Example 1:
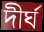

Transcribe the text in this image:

দীৰ্ঘ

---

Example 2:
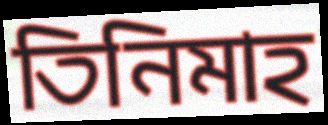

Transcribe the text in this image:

তিনিমাহ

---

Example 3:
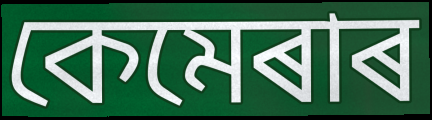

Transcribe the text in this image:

কেমেৰাৰ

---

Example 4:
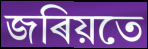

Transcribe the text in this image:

জৰিয়তে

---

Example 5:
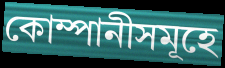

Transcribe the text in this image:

কোম্পানীসমূহে